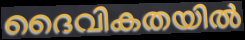
ദൈവികതയിൽ